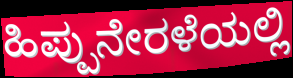
ಹಿಪ್ಪುನೇರಳೆಯಲ್ಲಿ